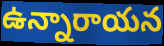
ఉన్నారాయన